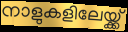
നാളുകളിലേയ്ക്ക്